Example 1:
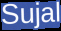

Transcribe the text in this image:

Sujal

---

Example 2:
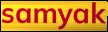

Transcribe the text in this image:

samyak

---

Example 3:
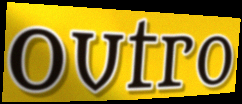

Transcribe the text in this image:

outro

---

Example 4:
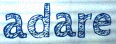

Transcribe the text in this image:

adare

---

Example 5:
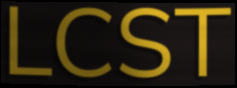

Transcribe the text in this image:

LCST